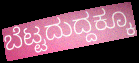
ಬೆಟ್ಟದುದ್ದಕ್ಕೂ